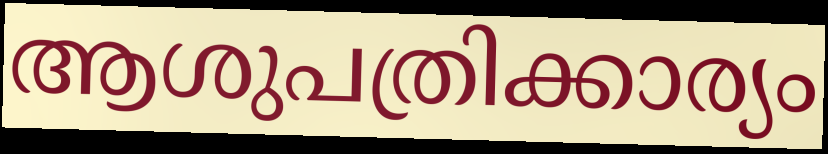
ആശുപത്രിക്കാര്യം